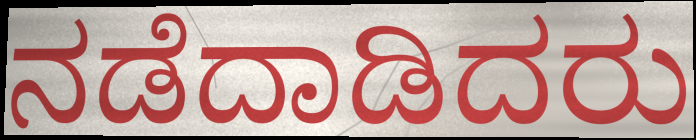
ನಡೆದಾಡಿದರು